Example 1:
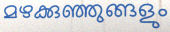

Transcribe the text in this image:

മഴക്കുഞ്ഞുങ്ങളും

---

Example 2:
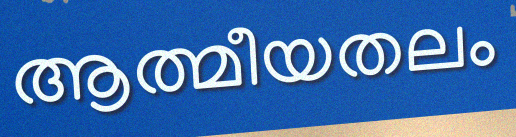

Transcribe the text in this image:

ആത്മീയതലം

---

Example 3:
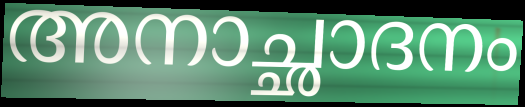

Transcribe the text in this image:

അനാച്ഛാദനം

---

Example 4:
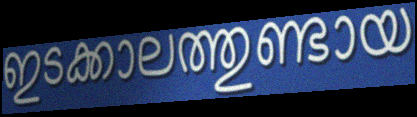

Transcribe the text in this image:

ഇടക്കാലത്തുണ്ടായ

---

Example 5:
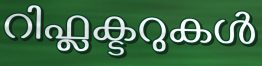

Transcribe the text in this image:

റിഫ്ലക്ടറുകൾ